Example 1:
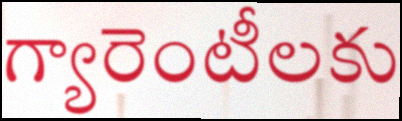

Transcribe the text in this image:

గ్యారెంటీలకు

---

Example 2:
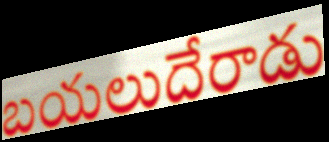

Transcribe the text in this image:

బయలుదేరాడు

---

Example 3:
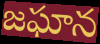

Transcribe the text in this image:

జఘాన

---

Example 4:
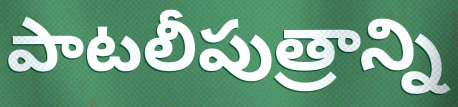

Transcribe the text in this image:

పాటలీపుత్రాన్ని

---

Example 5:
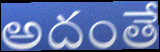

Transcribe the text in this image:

అదంతే